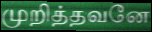
முறித்தவனே